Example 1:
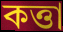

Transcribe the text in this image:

কত্তা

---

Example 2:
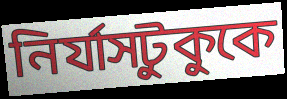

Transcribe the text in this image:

নির্যাসটুকুকে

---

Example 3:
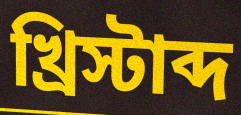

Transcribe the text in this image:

খ্রিস্টাব্দ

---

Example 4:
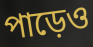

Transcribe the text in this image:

পাড়েও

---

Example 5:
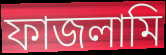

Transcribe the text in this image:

ফাজলামি